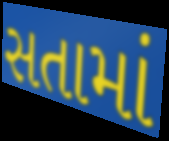
સતામાં